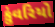
કુંવરિયો